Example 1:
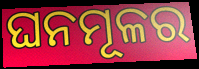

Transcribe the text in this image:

ଘନମୂଳର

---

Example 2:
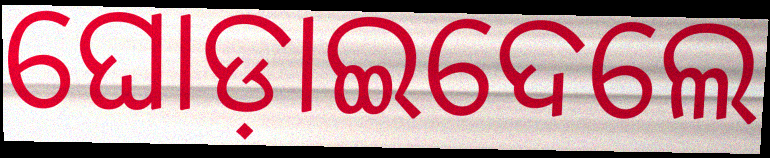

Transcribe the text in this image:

ଘୋଡ଼ାଇଦେଲେ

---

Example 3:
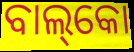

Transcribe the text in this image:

ବାଲ୍‌କୋ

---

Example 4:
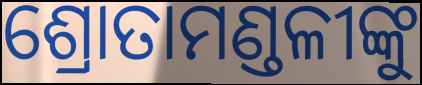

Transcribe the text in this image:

ଶ୍ରୋତାମଣ୍ଡଳୀଙ୍କୁ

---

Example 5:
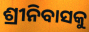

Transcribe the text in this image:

ଶ୍ରୀନିବାସକୁ